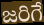
జరిగే